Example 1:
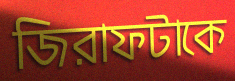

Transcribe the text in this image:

জিরাফটাকে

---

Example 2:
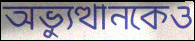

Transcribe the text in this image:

অভ্যুত্থানকেও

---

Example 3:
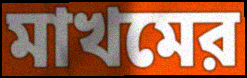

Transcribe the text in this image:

মাখমের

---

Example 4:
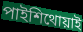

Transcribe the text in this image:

পাইশিথোয়াই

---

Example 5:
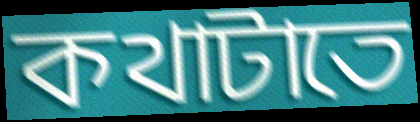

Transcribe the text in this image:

কথাটাতে